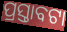
ପ୍ରସ୍ତାବଟା